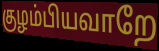
குழம்பியவாறே